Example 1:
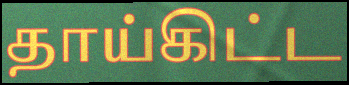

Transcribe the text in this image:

தாய்கிட்ட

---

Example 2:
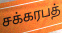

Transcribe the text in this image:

சக்கரபத்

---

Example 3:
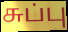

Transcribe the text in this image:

சுப்பு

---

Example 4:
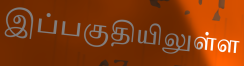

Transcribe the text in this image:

இப்பகுதியிலுள்ள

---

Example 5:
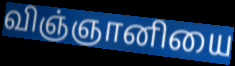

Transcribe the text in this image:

விஞ்ஞானியை